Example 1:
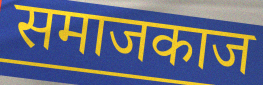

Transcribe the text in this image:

समाजकाज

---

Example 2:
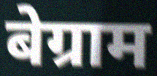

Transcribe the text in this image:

बेग्राम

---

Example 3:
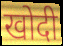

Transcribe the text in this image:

खोदी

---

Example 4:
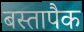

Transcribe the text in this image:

बस्तापैक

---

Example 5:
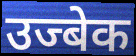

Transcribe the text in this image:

उज्बेक